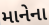
માનેના